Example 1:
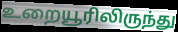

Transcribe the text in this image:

உறையூரிலிருந்து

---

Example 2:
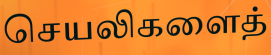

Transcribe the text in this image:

செயலிகளைத்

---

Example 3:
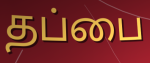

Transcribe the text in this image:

தப்பை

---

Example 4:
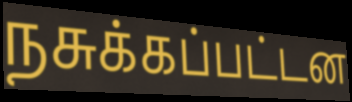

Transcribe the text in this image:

நசுக்கப்பட்டன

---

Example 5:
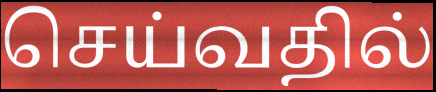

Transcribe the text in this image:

செய்வதில்